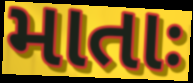
માતાઃ